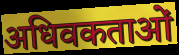
अधिवकताओं